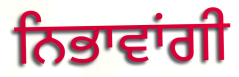
ਨਿਭਾਵਾਂਗੀ